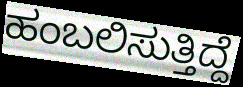
ಹಂಬಲಿಸುತ್ತಿದ್ದೆ